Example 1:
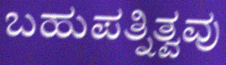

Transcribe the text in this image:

ಬಹುಪತ್ನಿತ್ವವು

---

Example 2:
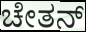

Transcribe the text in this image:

ಚೇತನ್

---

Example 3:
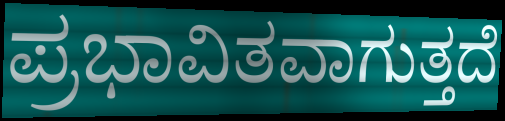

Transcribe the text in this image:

ಪ್ರಭಾವಿತವಾಗುತ್ತದೆ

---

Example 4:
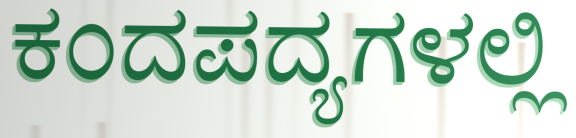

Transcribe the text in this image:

ಕಂದಪದ್ಯಗಳಲ್ಲಿ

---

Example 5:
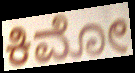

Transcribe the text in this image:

ಕಿಮೋ